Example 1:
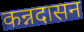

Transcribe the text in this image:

कन्नदासन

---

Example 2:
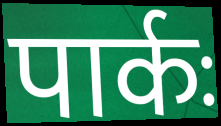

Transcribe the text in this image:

पार्कः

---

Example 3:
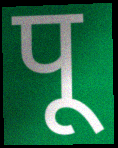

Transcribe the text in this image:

पू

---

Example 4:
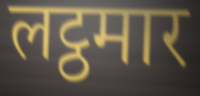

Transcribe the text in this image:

लट्ठमार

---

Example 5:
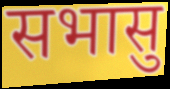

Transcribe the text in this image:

सभासु